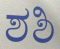
ಶಶಿ